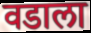
वडाला